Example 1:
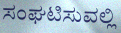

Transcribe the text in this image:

ಸಂಘಟಿಸುವಲ್ಲಿ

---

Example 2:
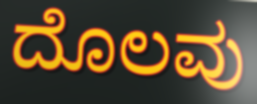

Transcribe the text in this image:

ದೊಲವು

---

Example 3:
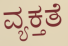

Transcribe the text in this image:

ವ್ಯಕ್ತತೆ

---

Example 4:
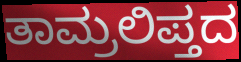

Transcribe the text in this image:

ತಾಮ್ರಲಿಪ್ತದ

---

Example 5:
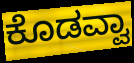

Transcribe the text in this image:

ಕೊಡವ್ವಾ